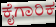
ಕೈಗಾರಿಕ